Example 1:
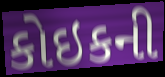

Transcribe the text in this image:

કોઇકની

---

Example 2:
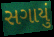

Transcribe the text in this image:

સગાયું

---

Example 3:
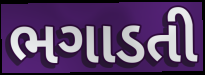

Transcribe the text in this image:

ભગાડતી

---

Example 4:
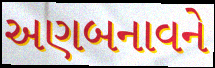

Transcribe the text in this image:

અણબનાવને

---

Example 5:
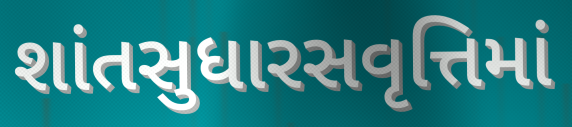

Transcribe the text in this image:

શાંતસુધારસવૃત્તિમાં